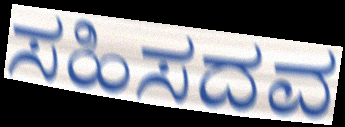
ಸಹಿಸದವ